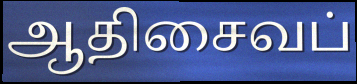
ஆதிசைவப்